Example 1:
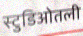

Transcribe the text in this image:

स्टुडिओतली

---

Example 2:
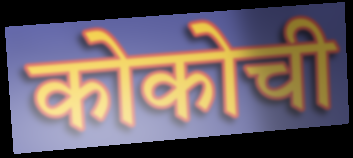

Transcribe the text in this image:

कोकोची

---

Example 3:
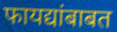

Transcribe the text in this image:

फायद्यांबाबत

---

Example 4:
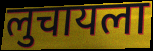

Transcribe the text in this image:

लुचायला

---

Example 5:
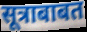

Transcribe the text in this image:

सूत्राबाबत